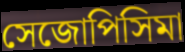
সেজোপিসিমা